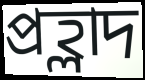
প্ৰহ্লাদ